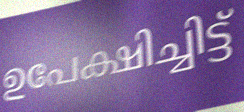
ഉപേക്ഷിച്ചിട്ട്